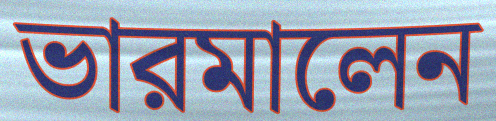
ভারমালেন